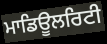
ਮਾਡਿਊਲਰਿਟੀ